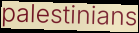
palestinians